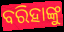
ବରିହାଙ୍କୁ